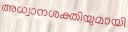
അധ്വാനശക്തിയുമായി